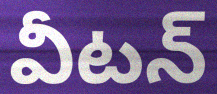
వీటన్